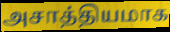
அசாத்தியமாக